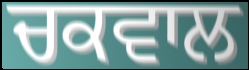
ਚਕਵਾਲ